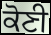
ਕੋਣੀ